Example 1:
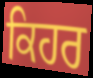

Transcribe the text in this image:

ਕਿਹਰ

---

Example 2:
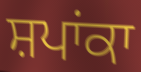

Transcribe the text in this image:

ਸ਼ਪਾਂਕਾ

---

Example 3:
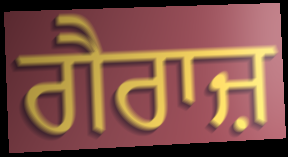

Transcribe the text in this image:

ਗੈਰਾਜ਼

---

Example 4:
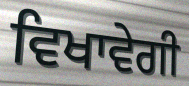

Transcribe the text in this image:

ਵਿਖਾਵੇਗੀ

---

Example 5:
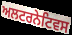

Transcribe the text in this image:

ਅਲਟਰਨੇਟਿਵਸ